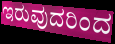
ಇರುವುದರಿಂದ